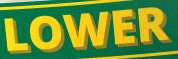
LOWER